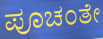
ಪೂಚಂತೇ